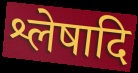
श्लेषादि